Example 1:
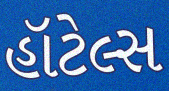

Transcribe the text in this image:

હૉટેલ્સ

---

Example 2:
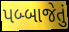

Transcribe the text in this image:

પબ્બાજેતું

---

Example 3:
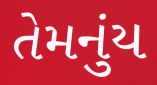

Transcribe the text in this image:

તેમનુંય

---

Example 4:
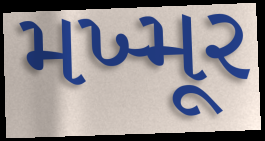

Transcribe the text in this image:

મખ્મૂર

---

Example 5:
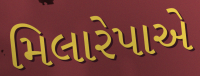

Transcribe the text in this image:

મિલારેપાએ